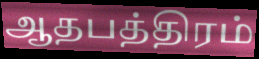
ஆதபத்திரம்